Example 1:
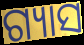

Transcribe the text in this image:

ଗ୍ୟାସ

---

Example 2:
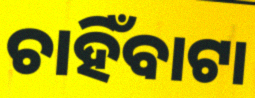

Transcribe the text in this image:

ଚାହିଁବାଟା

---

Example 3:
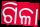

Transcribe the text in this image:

ଗିଳା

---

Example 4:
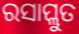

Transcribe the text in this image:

ରସାପ୍ଲୁତ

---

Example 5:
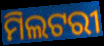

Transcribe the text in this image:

ମିଲଟରୀ